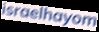
israelhayom